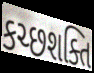
કચ્છશક્તિ